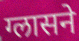
ग्लासने